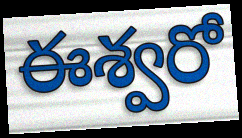
ఈశ్వరో